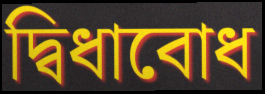
দ্বিধাবোধ